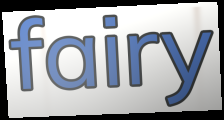
fairy